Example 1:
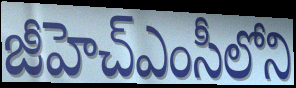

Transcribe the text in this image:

జీహెచ్ఎంసీలోని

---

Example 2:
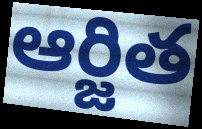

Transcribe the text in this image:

ఆర్జిత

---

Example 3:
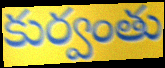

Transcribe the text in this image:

కుర్వంతు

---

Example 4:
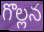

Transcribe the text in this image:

గొల్లన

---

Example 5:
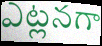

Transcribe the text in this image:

ఎట్లనగా